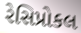
રેસિપ્રોકલ